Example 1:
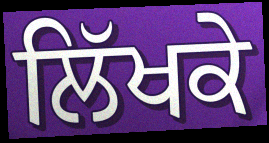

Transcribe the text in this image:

ਲਿੱਖਕੇ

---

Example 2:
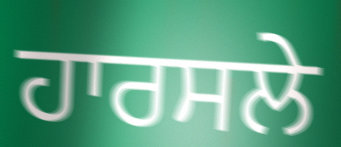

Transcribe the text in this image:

ਹਾਰਸਲੇ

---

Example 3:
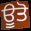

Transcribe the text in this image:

ਊਤੋ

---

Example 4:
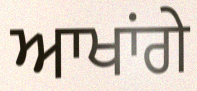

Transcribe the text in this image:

ਆਖਾਂਗੇ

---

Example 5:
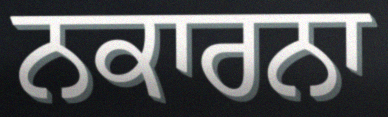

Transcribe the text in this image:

ਨਕਾਰਨਾ